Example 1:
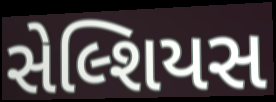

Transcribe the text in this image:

સેલ્શિયસ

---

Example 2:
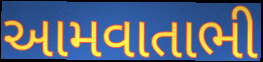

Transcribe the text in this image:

આમવાતાભી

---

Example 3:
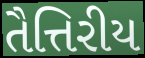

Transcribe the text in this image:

તૈત્તિરીય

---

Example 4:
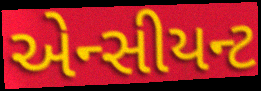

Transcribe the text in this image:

એન્સીયન્ટ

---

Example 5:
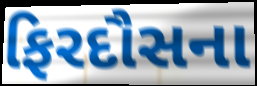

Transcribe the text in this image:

ફિરદૌસના